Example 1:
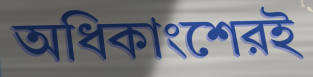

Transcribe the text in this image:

অধিকাংশেরই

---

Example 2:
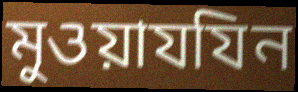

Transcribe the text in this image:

মুওয়াযযিন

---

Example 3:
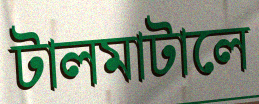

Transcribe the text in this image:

টালমাটালে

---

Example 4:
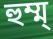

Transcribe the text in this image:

হুম্ম্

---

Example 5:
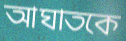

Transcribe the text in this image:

আঘাতকে